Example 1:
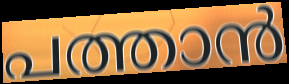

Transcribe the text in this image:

പത്താൻ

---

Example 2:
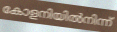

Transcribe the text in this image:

കോളനിയിൽനിന്ന്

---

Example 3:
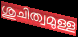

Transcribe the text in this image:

ശുചിത്വമുള്ള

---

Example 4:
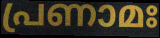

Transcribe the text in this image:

പ്രണാമഃ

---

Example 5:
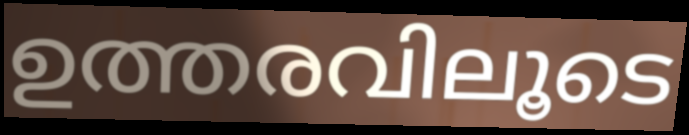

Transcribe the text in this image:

ഉത്തരവിലൂടെ